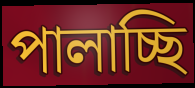
পালাচ্ছি